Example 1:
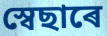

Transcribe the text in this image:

স্বেছাৰে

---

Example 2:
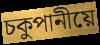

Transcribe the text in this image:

চকুপানীয়ে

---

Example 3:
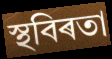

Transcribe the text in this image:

স্থবিৰতা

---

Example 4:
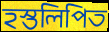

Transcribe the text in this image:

হস্তলিপিত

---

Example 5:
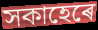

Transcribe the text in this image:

সকাহেৰে